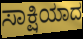
ಸಾಕ್ಷಿಯಾದ